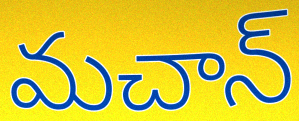
మచాన్